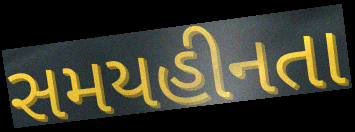
સમયહીનતા